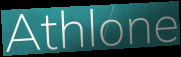
Athlone